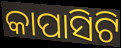
କାପାସିଟି